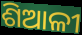
ଶିଆଳୀ